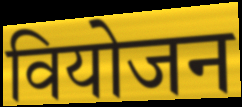
वियोजन